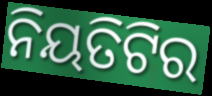
ନିୟତିଟିର